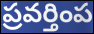
ప్రవర్తింప